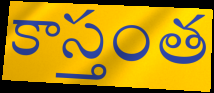
కాస్తంత